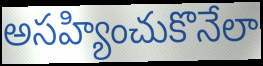
అసహ్యించుకొనేలా